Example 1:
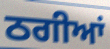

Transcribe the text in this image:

ਠਗੀਆਂ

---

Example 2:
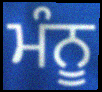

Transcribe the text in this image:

ਮੰਨੂ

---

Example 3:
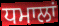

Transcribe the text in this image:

ਧਮਾਲਾਂ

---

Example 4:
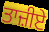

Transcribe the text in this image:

ਤਾਜ਼ੀਏ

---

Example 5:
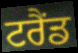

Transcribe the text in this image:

ਟਰੈਂਡ